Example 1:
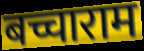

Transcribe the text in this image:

बच्चाराम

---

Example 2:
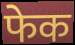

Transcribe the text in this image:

फेक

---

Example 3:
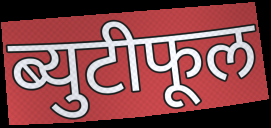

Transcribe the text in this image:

ब्युटीफूल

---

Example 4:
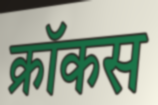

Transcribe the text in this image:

क्रॉकस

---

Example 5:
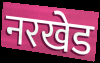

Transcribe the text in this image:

नरखेड